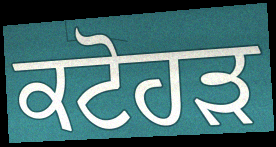
ਕਟੋਹੜ